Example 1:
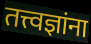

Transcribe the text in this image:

तत्त्वज्ञांना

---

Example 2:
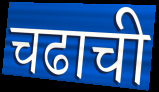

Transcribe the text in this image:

चढाची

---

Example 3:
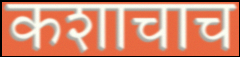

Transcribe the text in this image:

कशाचाच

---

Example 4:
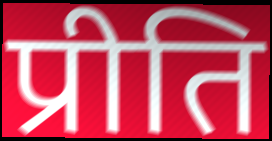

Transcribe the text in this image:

प्रीति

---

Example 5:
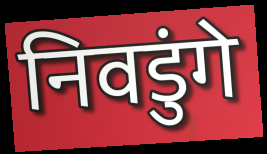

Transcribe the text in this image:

निवडुंगे